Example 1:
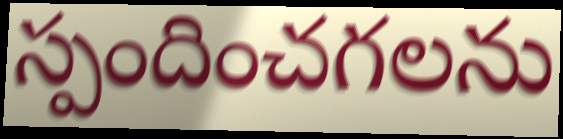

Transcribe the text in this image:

స్పందించగలను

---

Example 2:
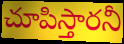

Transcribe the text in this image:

చూపిస్తారనీ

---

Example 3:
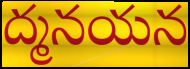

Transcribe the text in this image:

ద్మనయన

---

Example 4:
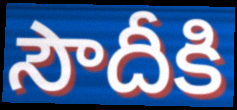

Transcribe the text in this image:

సౌదీకి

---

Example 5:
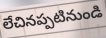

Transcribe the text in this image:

లేచినప్పటినుండి